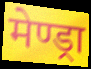
मेण्ड्रा